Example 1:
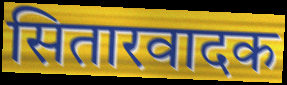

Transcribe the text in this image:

सितारवादक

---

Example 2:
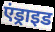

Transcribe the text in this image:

एंड्राइड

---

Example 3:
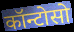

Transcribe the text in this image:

कॉन्टोसो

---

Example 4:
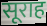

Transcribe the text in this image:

सूराह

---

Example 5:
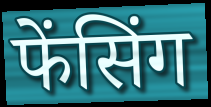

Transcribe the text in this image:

फेंसिंग